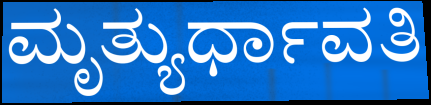
ಮೃತ್ಯುರ್ಧಾವತಿ